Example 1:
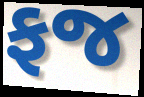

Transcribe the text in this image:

ફજ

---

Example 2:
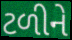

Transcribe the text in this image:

ટળીને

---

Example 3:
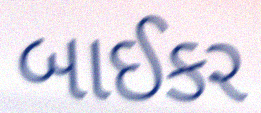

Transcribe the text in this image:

બાઈકર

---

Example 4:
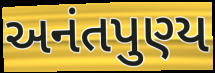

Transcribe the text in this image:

અનંતપુણ્ય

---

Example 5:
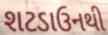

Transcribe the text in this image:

શટડાઉનથી